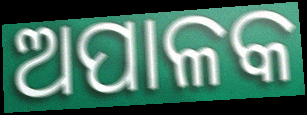
ଅପାଳକ